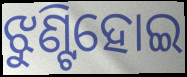
ଝୁଣ୍ଟିହୋଇ